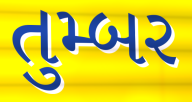
તુમ્બર